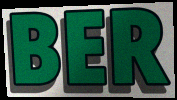
BER